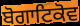
ਬੋਗਾਟਿਕੋਵ